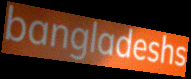
bangladeshs